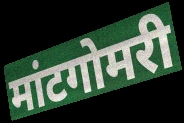
मांटगोमरी